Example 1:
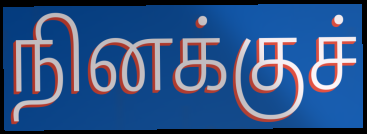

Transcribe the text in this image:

நினக்குச்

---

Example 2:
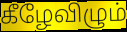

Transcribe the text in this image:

கீழேவிழும்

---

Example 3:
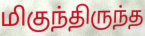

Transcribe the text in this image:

மிகுந்திருந்த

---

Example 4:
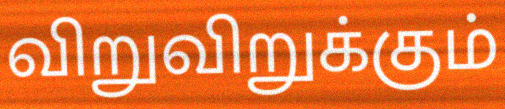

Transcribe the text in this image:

விறுவிறுக்கும்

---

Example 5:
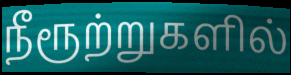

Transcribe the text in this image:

நீரூற்றுகளில்